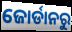
ଜୋର୍ଡାନରୁ